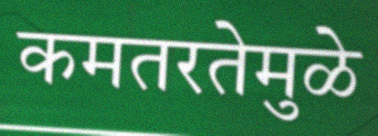
कमतरतेमुळे